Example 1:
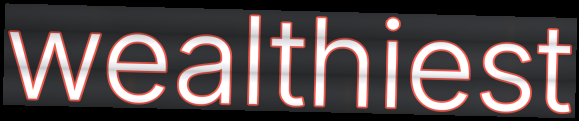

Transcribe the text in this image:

wealthiest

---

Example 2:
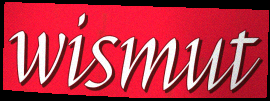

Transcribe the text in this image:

wismut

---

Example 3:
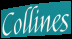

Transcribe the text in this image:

Collines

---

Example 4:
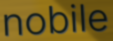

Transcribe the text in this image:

nobile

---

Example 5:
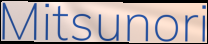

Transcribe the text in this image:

Mitsunori